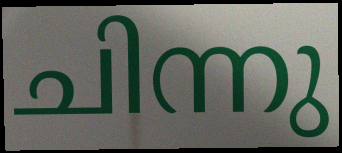
ചിന്നു